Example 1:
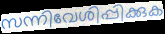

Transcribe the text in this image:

സന്നിവേശിപ്പിക്കുക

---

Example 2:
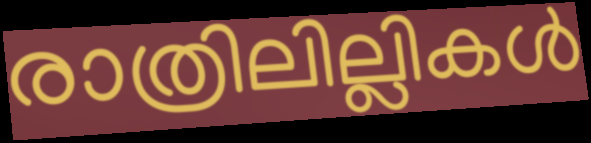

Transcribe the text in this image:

രാത്രിലില്ലികൾ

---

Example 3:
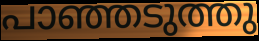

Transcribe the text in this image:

പാഞ്ഞടുത്തു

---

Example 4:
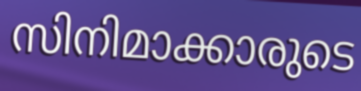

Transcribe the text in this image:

സിനിമാക്കാരുടെ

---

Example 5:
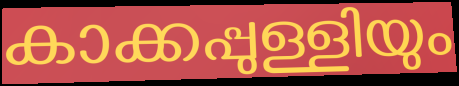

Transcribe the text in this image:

കാക്കപ്പുള്ളിയും